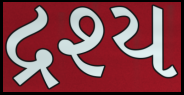
દ્રશ્ય